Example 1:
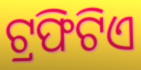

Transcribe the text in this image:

ଟ୍ରଫିଟିଏ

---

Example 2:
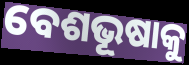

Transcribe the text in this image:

ବେଶଭୂଷାକୁ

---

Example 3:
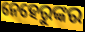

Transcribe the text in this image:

ନେହେରୁଙ୍କର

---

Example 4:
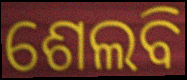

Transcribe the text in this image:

ଶେଲବି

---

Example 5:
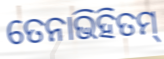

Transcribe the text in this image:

ତେନାଭିହିତମ୍